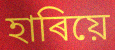
হাৰিয়ে